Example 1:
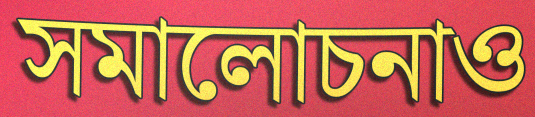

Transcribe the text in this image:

সমালোচনাও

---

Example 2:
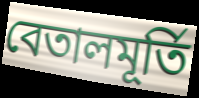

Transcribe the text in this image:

বেতালমূর্তি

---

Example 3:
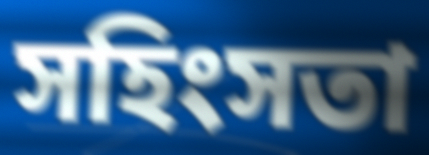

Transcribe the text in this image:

সহিংসতা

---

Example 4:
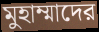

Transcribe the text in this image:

মুহাম্মাদের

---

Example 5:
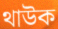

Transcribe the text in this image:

থাউক